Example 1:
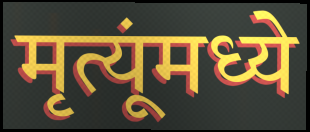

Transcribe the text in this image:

मृत्यूंमध्ये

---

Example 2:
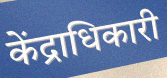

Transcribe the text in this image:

केंद्राधिकारी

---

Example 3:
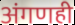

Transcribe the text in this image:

अंगणही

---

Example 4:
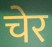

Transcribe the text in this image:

चेर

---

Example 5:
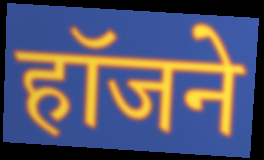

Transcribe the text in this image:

हॉजने